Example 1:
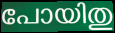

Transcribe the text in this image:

പോയിതു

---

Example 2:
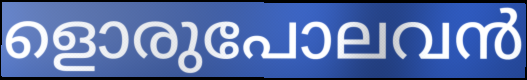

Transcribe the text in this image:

ളൊരുപോലവൻ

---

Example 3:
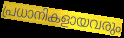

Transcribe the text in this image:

പ്രധാനികളായവരും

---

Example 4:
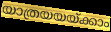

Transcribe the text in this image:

യാത്രയയയ്ക്കാം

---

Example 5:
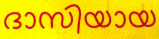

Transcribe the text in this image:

ദാസിയായ